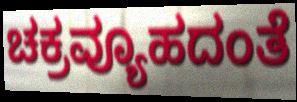
ಚಕ್ರವ್ಯೂಹದಂತೆ